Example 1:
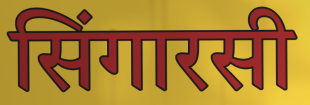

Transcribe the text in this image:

सिंगारसी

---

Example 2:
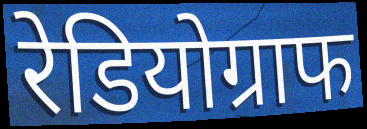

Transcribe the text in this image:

रेडियोग्राफ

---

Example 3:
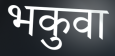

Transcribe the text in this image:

भकुवा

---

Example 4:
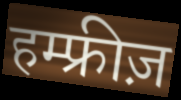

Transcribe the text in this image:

हम्फ्रीज़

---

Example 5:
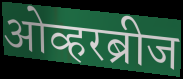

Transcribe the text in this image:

ओव्हरब्रीज